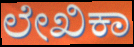
ಲೇಖಿಕಾ